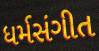
ધર્મસંગીત